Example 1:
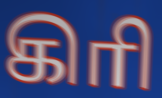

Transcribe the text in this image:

கிரி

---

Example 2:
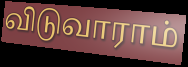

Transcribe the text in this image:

விடுவாராம்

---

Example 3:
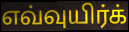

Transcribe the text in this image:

எவ்வுயிர்க்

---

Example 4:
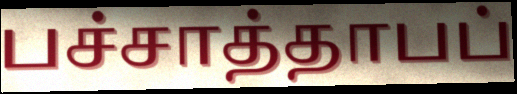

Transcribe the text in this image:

பச்சாத்தாபப்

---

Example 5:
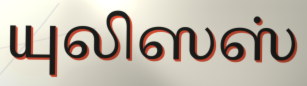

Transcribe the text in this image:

யுலிஸஸ்